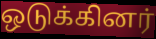
ஒடுக்கினர்